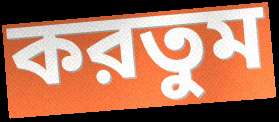
করতুম